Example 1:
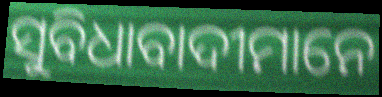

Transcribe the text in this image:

ସୁବିଧାବାଦୀମାନେ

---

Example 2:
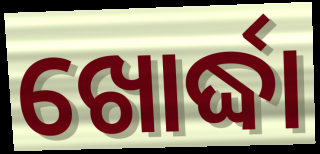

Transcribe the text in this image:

ଖୋର୍ଦ୍ଧା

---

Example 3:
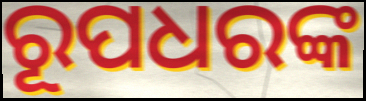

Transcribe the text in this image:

ରୂପଧରଙ୍କ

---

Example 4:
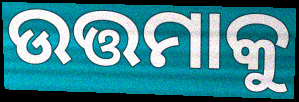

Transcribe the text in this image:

ଉତ୍ତମାକୁ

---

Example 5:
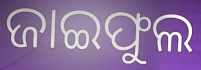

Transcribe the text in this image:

ଜାଇଫୁଲ